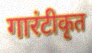
गारंटीकृत